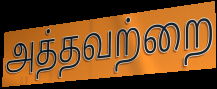
அத்தவற்றை